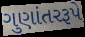
ગુણાંતરરૂપે